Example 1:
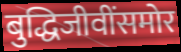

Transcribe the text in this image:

बुद्धिजीवींसमोर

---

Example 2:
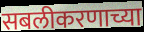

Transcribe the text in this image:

सबलीकरणाच्या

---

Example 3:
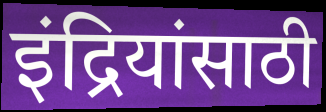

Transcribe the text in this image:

इंद्रियांसाठी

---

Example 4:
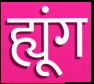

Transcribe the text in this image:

ह्यूंग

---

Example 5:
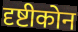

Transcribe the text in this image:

दृष्टीकोन